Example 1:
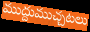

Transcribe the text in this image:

ముద్దుముచ్చటలు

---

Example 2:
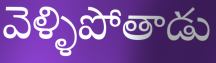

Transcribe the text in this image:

వెళ్ళిపోతాడు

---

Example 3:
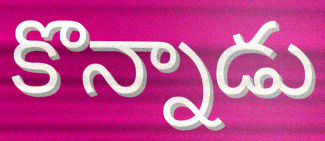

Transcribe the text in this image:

కొన్నాడు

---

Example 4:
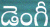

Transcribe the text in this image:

డెంగీ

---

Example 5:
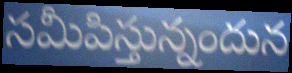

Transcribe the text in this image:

సమీపిస్తున్నందున